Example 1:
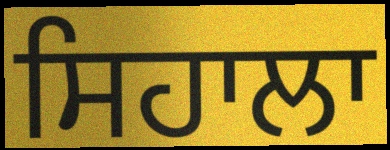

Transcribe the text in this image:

ਸਿਹਾਲਾ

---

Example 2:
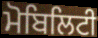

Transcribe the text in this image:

ਮੋਬਿਲਿਟੀ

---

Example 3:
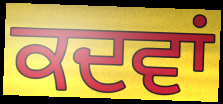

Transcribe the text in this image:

ਕਦਵਾਂ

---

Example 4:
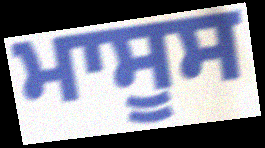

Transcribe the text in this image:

ਮਾਸੂਸ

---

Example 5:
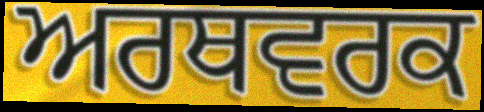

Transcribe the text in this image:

ਅਰਥਵਰਕ